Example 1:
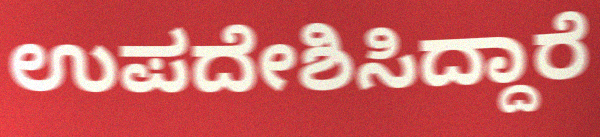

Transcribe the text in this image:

ಉಪದೇಶಿಸಿದ್ದಾರೆ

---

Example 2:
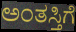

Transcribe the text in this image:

ಅಂತಸ್ತಿಗೆ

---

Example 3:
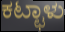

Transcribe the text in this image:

ಕಟ್ಟಾಳು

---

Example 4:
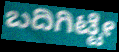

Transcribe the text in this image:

ಬದಿಗಿಟ್ಟೇ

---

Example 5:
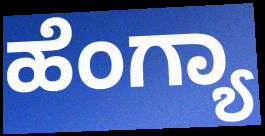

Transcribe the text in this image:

ಹೆಂಗ್ಯಾ